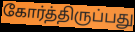
கோர்த்திருப்பது